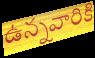
ఉన్నవారికి